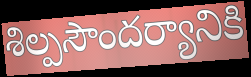
శిల్పసౌందర్యానికి